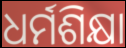
ଧର୍ମଶିକ୍ଷା